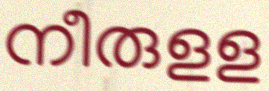
നീരുളള